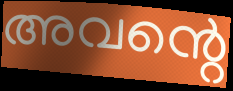
അവന്റെ